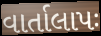
વાર્તાલાપઃ